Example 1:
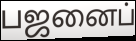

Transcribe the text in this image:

பஜனைப்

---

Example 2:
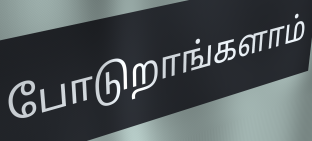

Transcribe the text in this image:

போடுறாங்களாம்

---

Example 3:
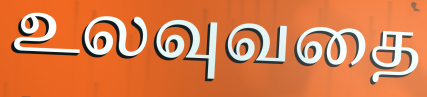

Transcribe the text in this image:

உலவுவதை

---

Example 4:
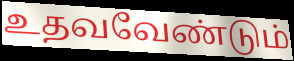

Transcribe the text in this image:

உதவவேண்டும்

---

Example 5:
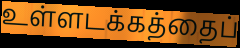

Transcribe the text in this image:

உள்ளடக்கத்தைப்